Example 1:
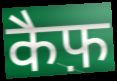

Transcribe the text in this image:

कैफ़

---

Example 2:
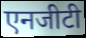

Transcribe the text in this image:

एनजीटी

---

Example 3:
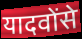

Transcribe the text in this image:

यादवोंसे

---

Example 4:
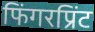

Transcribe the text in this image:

फिंगरप्रिंट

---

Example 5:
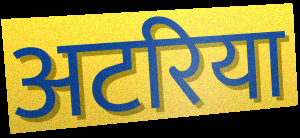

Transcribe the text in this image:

अटरिया